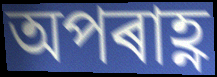
অপৰাহ্ণ